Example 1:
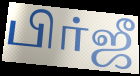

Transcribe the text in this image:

பிர்ஜீ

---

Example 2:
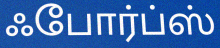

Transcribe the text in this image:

ஃபோர்ப்ஸ்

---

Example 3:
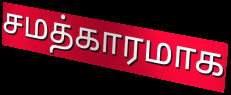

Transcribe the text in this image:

சமத்காரமாக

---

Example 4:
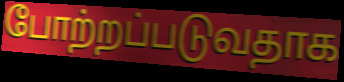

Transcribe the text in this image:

போற்றப்படுவதாக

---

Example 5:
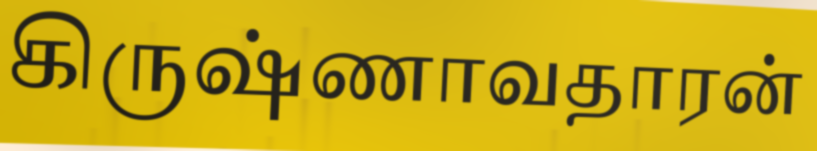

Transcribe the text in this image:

கிருஷ்ணாவதாரன்